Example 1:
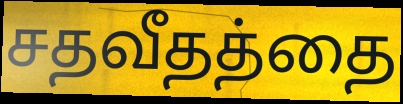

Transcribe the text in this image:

சதவீதத்தை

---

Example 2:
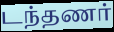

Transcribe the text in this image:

டந்தணர்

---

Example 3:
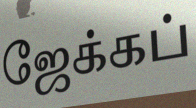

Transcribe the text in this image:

ஜேக்கப்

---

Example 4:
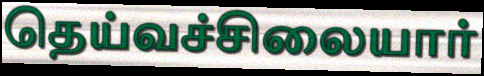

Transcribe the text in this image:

தெய்வச்சிலையார்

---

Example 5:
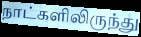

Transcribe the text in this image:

நாட்களிலிருந்து